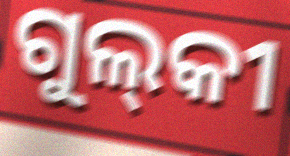
ଗୁଲ୍‌କୀ